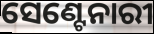
ସେଣ୍ଟେନାରୀ